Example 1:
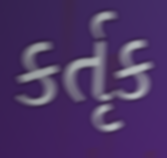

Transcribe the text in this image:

કર્તૃક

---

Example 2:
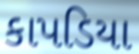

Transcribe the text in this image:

કાપડિયા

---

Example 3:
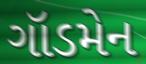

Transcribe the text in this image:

ગૉડમેન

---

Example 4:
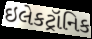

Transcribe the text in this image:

ઇલેકટ્રૉનિક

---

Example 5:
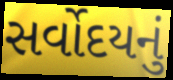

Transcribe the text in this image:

સર્વોદયનું